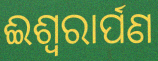
ଈଶ୍ୱରାର୍ପଣ